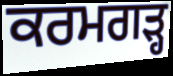
ਕਰਮਗੜ੍ਹ